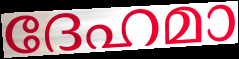
ദേഹമാ